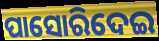
ପାସୋରିଦେଇ